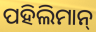
ପହିଲିମାନ୍